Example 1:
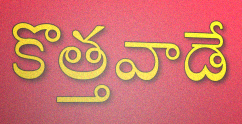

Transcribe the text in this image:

కొత్తవాడే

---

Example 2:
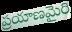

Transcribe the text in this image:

ప్రయాణమైరి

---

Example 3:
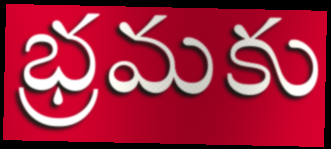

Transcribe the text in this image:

భ్రమకు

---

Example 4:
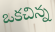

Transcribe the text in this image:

ఒకచిన్న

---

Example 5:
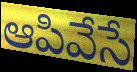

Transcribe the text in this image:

ఆపివేసే